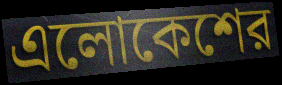
এলোকেশের